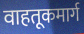
वाहतूकमार्ग